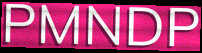
PMNDP